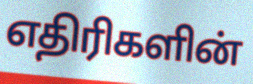
எதிரிகளின்